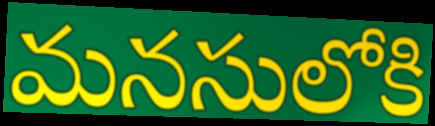
మనసులోకి